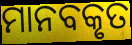
ମାନବକୃତ